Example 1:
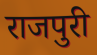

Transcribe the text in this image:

राजपुरी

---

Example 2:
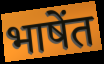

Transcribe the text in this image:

भाषेंत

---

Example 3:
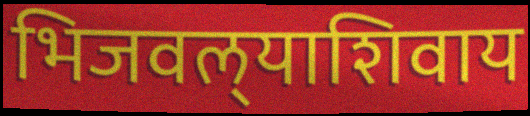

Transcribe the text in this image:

भिजवल्याशिवाय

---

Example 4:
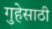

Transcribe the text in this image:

गुहेसाठी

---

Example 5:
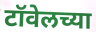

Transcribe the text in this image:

टॉवेलच्या